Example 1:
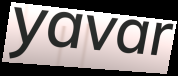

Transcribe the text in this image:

yavar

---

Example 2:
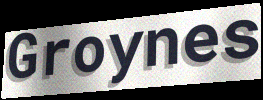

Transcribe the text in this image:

Groynes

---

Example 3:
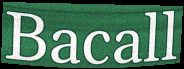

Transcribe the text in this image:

Bacall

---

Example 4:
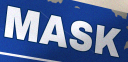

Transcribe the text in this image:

MASK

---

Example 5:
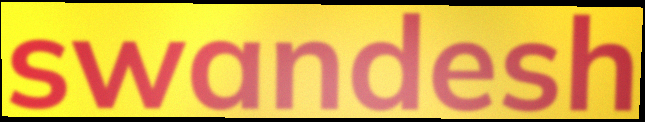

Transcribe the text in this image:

swandesh